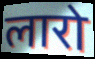
लारो